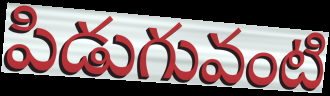
పిడుగువంటి